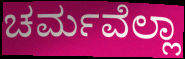
ಚರ್ಮವೆಲ್ಲಾ